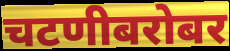
चटणीबरोबर